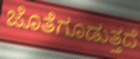
ಜೊತೆಗೂಡುತ್ತದೆ